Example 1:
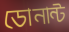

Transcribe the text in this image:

ডোনান্ট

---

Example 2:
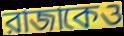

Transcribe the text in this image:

রাজাকেও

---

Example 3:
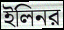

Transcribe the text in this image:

ইলিনর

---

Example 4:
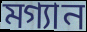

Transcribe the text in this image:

মগ্যান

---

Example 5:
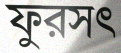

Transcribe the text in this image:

ফুরসৎ